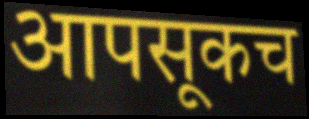
आपसूकच